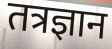
तत्रज्ञान